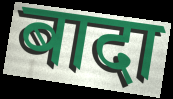
बादा